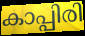
കാപ്പിരി